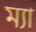
ম্যা